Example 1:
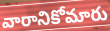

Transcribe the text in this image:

వారానికోమారు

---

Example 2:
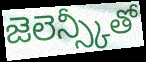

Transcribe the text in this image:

జెలెన్స్కీతో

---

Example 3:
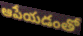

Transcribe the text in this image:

ఆపేయడంతో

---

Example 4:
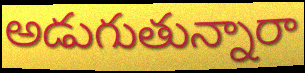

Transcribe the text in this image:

అడుగుతున్నారా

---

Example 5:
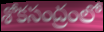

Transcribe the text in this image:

శోకసంద్రంలో